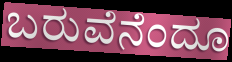
ಬರುವೆನೆಂದೂ